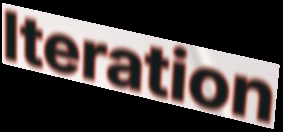
Iteration